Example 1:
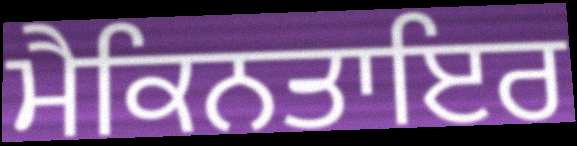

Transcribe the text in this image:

ਮੈਕਿਨਤਾਇਰ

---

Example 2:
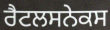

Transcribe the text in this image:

ਰੈਟਲਸਨੇਕਸ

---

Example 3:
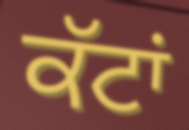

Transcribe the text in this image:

ਕੱਟਾਂ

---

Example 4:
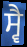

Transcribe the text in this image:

ਸ੍ਵੈ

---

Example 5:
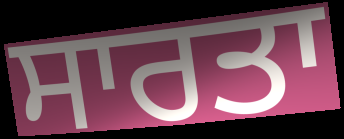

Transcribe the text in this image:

ਸਾਰਤਾ